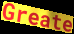
Greate